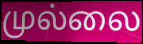
முல்லை